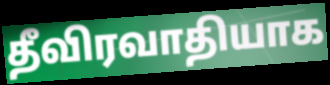
தீவிரவாதியாக